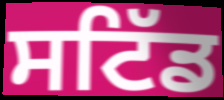
ਸਟਿੱਡ